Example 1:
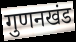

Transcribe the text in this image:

गुणनखंड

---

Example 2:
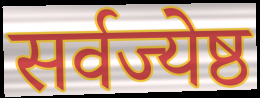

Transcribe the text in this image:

सर्वज्येष्ठ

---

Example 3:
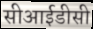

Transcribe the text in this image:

सीआईडीसी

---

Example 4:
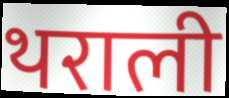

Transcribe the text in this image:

थराली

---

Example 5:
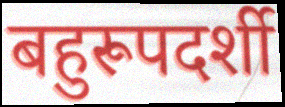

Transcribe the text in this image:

बहुरूपदर्शी